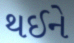
થઈને